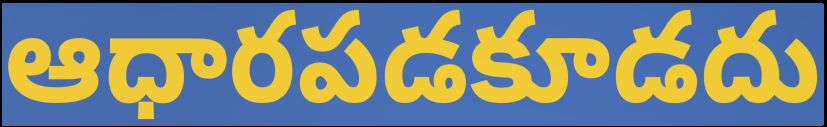
ఆధారపడకూడదు